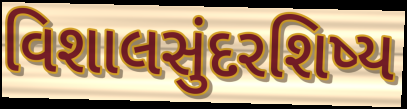
વિશાલસુંદરશિષ્ય